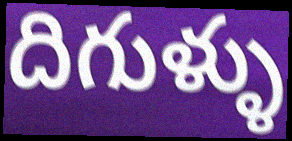
దిగుళ్ళు